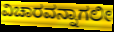
ವಿಚಾರವನ್ನಾಗಲೀ